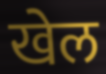
खेल